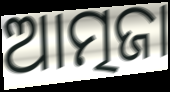
ଆତ୍ମଜା